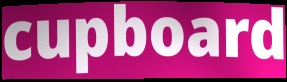
cupboard